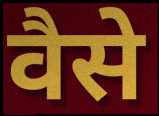
वैसे